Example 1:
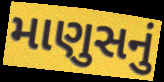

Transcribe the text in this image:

માણુસનું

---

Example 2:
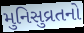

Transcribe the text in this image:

મુનિસુવ્રતનો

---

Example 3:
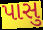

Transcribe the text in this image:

પાસુ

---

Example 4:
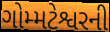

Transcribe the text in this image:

ગોમ્મટેશ્વરની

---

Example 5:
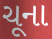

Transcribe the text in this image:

ચૂના